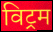
विट्रम